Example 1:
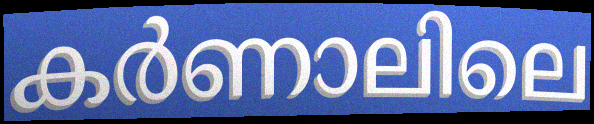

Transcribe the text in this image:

കർണാലിലെ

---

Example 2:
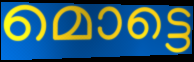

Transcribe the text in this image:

മൊട്ടെ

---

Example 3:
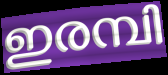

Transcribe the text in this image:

ഇരമ്പി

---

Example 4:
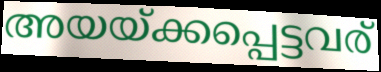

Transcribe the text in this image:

അയയ്ക്കപ്പെട്ടവര്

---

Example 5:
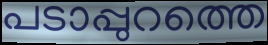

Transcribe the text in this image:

പടാപ്പുറത്തെ